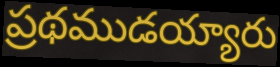
ప్రథముడయ్యారు